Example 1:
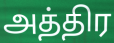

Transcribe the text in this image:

அத்திர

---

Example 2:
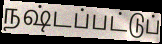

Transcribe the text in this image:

நஷ்டப்பட்டுப்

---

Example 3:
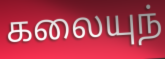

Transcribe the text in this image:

கலையுந்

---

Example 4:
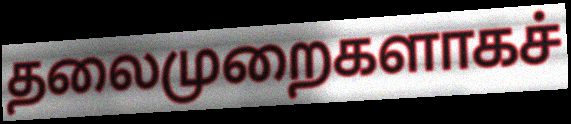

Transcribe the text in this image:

தலைமுறைகளாகச்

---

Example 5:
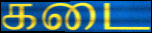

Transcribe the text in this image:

கடை